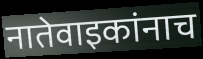
नातेवाइकांनाच